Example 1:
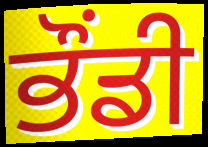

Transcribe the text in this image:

ਭੌਂਡੀ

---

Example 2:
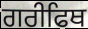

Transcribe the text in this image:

ਗਰੀਫਿਥ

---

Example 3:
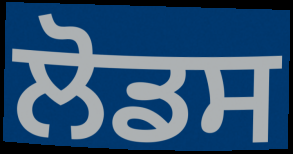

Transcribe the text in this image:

ਲੋਡਸ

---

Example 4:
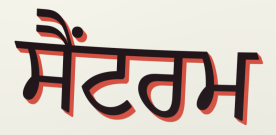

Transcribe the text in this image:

ਸੈਂਟਰਮ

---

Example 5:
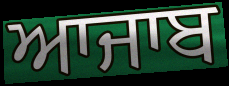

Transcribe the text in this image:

ਆਜਾਬ